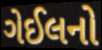
ગેઈલનો